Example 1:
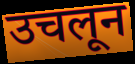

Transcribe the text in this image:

उचलून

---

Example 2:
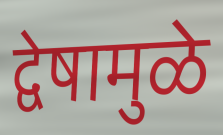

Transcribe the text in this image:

द्वेषामुळे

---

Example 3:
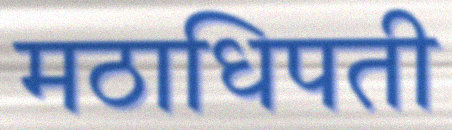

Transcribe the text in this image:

मठाधिपती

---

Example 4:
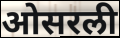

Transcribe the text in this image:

ओसरली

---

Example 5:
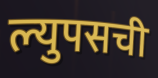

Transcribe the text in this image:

ल्युपसची